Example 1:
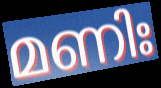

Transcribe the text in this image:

മണിഃ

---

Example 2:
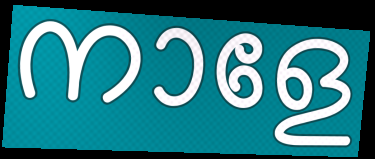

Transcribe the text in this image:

നാളേ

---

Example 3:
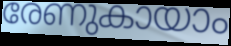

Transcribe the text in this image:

രേണുകായാം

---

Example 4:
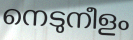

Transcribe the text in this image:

നെടുനീളം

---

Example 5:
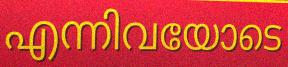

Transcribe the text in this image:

എന്നിവയോടെ